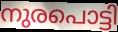
നുരപൊട്ടി